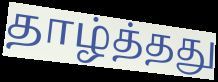
தாழ்த்தது